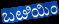
ಬೞಿಯಿಂ